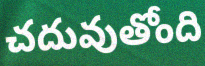
చదువుతోంది